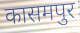
कासमपुर